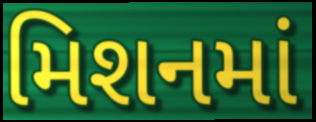
મિશનમાં